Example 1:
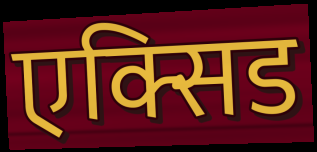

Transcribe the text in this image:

एक्सिड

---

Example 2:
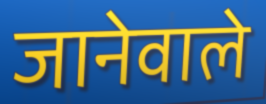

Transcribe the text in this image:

जानेवाले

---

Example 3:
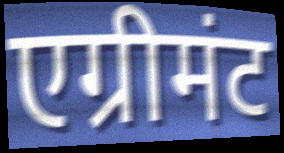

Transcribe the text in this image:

एग्रीमंट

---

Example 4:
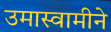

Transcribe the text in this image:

उमास्वामीने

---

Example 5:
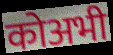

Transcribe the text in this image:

कोअभी